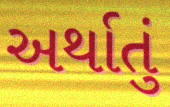
અર્થાતું